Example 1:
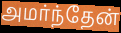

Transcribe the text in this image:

அமர்ந்தேன்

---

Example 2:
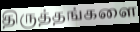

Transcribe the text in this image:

திருத்தங்களை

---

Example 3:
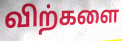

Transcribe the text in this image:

விற்களை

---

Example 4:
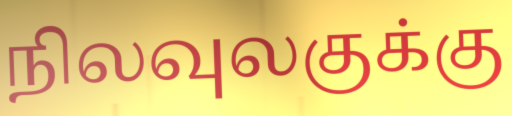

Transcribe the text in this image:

நிலவுலகுக்கு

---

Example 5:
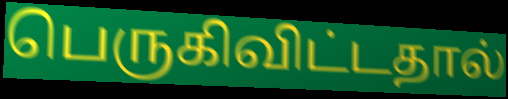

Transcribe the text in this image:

பெருகிவிட்டதால்